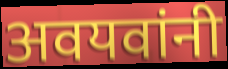
अवयवांनी